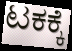
ಟಕಕ್ಕೆ